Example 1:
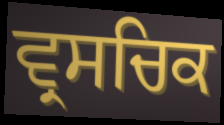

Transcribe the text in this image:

ਵ੍ਰਸਚਿਕ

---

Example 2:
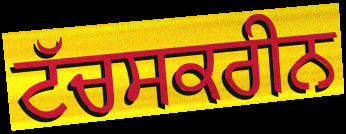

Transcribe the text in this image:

ਟੱਚਸਕਰੀਨ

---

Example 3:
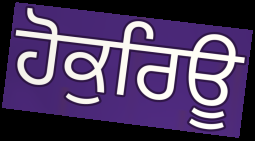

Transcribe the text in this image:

ਹੋਕੁਰਿਊ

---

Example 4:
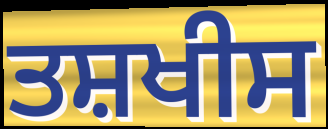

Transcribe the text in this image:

ਤਸ਼ਖੀਸ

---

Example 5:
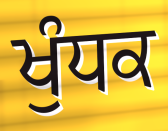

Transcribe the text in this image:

ਖੁੰਧਕ